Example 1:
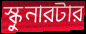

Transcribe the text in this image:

স্কুনারটার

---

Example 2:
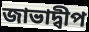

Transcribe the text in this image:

জাভাদ্বীপ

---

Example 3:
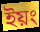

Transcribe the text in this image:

ইয়ং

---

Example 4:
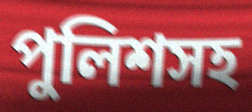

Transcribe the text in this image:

পুলিশসহ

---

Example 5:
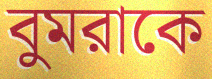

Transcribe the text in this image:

বুমরাকে